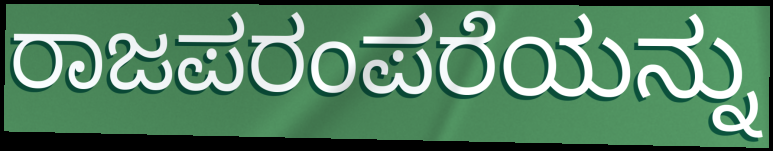
ರಾಜಪರಂಪರೆಯನ್ನು